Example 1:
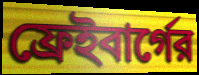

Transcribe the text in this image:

ফ্রেইবার্গের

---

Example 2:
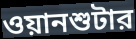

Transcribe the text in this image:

ওয়ানশুটার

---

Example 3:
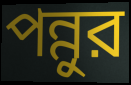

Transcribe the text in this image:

পন্নুর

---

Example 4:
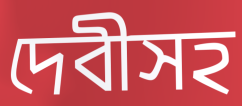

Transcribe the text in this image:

দেবীসহ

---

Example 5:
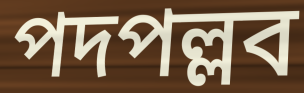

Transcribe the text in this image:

পদপল্লব